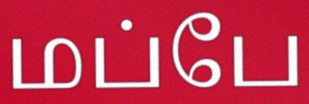
மப்பே